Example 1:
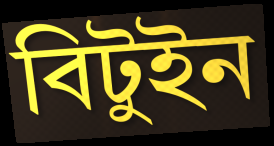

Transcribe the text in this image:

বিটুইন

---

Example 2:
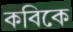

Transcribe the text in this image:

কবিকে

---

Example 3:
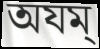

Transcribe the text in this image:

অযম্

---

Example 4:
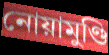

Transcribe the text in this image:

নোয়ামুণ্ডি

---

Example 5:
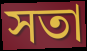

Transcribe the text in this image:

সতা